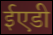
ईएडी